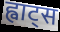
ह्वाट्स